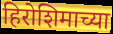
हिरोशिमाच्या